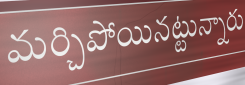
మర్చిపోయినట్టున్నారు